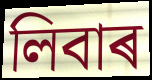
লিবাৰ